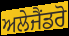
ਅਲੇਜੈਂਡਰੋ